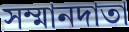
সম্মানদাতা